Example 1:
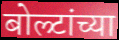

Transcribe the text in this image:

बोल्टांच्या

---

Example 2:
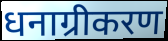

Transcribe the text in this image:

धनाग्रीकरण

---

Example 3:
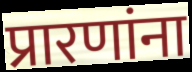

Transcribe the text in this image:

प्रारणांना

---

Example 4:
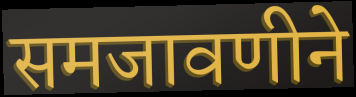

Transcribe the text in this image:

समजावणीने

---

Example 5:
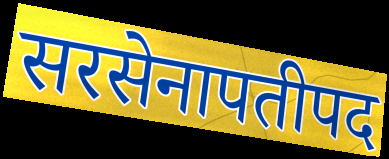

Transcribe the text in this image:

सरसेनापतीपद